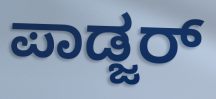
ಪಾಡ್ಜರ್